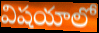
విషయాలో